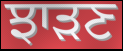
ਝਾੜਣ